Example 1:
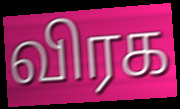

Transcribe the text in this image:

விரக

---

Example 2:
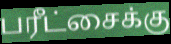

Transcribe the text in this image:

பரீட்சைக்கு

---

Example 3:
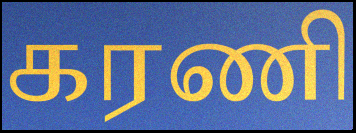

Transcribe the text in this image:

கரணி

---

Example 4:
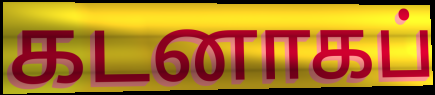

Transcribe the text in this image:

கடனாகப்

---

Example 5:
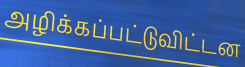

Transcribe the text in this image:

அழிக்கப்பட்டுவிட்டன